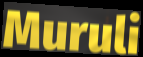
Muruli